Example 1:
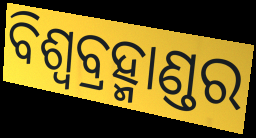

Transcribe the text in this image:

ବିଶ୍ୱବ୍ରହ୍ମାଣ୍ଡର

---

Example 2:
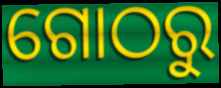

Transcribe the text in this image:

ଗୋଠରୁ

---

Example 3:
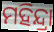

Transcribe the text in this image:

ମହିନ୍ଦ୍ରା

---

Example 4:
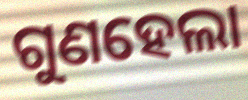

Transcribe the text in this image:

ଗୁଣହେଲା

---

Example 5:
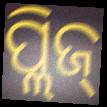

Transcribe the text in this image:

ପ୍ଲିଜ୍